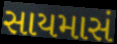
સાયમાસં